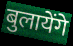
बुलायेंगे